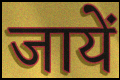
जायें